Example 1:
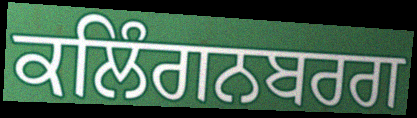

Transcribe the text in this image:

ਕਲਿੰਗਨਬਰਗ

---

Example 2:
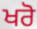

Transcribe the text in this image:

ਖਰੋ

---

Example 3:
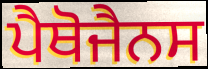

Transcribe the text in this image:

ਪੈਥੋਜੈਨਸ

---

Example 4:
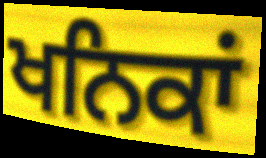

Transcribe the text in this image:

ਖਨਿਕਾਂ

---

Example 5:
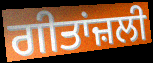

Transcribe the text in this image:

ਗੀਤਾਂਜ਼ਲੀ